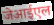
जेआईएल